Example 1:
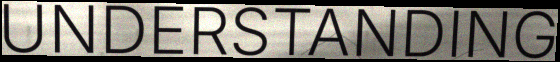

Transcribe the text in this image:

UNDERSTANDING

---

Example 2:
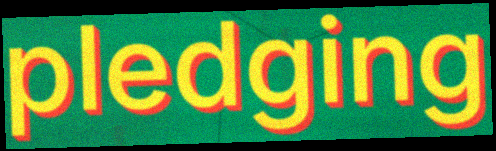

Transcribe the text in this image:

pledging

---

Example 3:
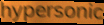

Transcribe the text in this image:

hypersonic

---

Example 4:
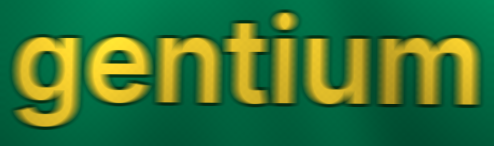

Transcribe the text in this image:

gentium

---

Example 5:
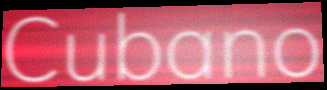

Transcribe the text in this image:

Cubano